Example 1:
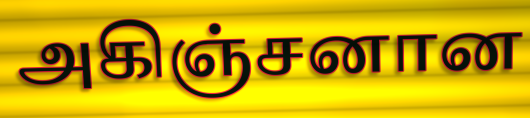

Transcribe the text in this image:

அகிஞ்சனான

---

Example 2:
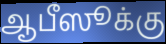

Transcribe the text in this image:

ஆபீஸூக்கு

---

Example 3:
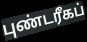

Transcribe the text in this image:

புண்டரீகப்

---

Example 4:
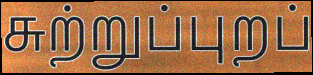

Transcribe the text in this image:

சுற்றுப்புறப்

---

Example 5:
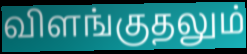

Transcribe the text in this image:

விளங்குதலும்